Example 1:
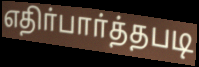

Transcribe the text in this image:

எதிர்பார்த்தபடி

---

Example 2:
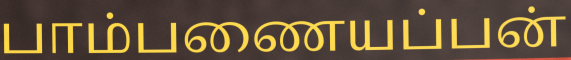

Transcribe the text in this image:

பாம்பணையப்பன்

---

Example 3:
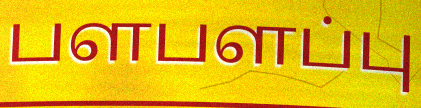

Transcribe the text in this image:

பளபளப்பு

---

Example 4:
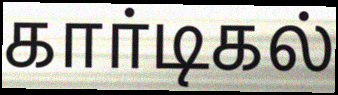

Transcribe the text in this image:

கார்டிகல்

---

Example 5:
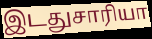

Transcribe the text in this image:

இடதுசாரியா